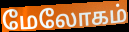
மேலோகம்